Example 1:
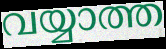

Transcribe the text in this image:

വയ്യാത്ത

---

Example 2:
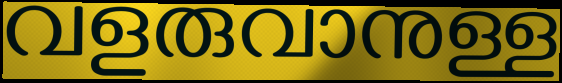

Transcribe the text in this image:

വളരുവാനുള്ള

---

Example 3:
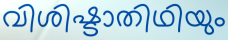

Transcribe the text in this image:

വിശിഷ്ടാതിഥിയും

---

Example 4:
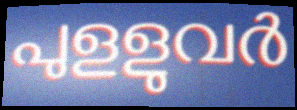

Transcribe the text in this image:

പുളളുവർ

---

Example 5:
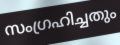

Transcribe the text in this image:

സംഗ്രഹിച്ചതും